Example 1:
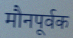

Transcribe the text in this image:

मौनपूर्वक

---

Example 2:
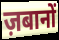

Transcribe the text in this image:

ज़बानों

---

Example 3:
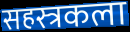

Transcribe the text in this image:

सहस्त्रकला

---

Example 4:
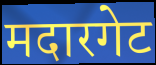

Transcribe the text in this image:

मदारगेट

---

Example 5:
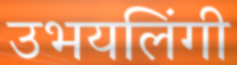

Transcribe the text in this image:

उभयलिंगी